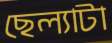
ছেল্যাটা